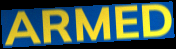
ARMED